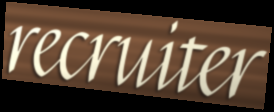
recruiter